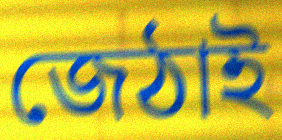
জেঠাই